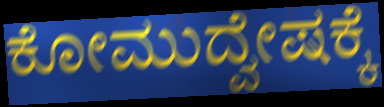
ಕೋಮುದ್ವೇಷಕ್ಕೆ